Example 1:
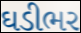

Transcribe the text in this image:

ઘડીભર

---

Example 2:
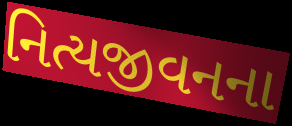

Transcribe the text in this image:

નિત્યજીવનના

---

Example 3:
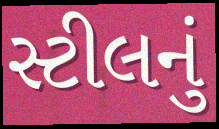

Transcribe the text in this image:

સ્ટીલનું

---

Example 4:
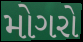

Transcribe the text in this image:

મોગરો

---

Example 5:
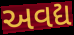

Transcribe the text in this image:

અવદ્ય